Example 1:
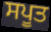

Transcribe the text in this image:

ਸਪੂਤ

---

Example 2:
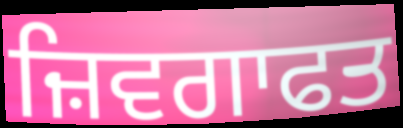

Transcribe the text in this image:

ਜ਼ਿਵਗਾਫਤ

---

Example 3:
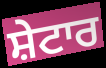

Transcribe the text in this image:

ਸ਼ੇਟਾਰ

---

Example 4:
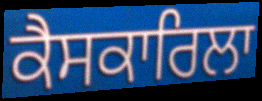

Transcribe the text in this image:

ਕੈਸਕਾਰਿਲਾ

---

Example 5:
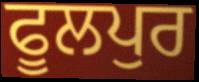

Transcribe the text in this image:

ਫੂਲਪੁਰ